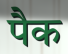
पैक